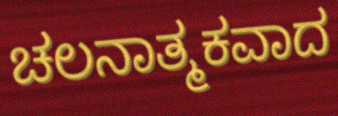
ಚಲನಾತ್ಮಕವಾದ